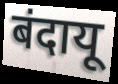
बंदायू